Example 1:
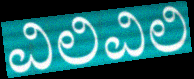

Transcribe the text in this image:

ವಿಲಿವಿಲಿ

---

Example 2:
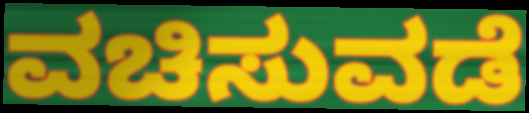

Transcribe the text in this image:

ವಚಿಸುವಡೆ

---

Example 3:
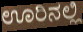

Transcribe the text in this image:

ಊರಿನಲ್ಲಿ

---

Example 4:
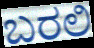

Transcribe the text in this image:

ಬರಲಿ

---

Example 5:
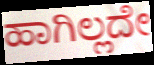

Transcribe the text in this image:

ಹಾಗಿಲ್ಲದೇ